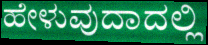
ಹೇಳುವುದಾದಲ್ಲಿ